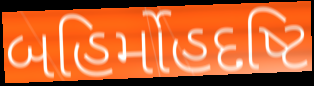
બહિર્મોહદષ્ટિ